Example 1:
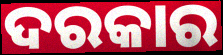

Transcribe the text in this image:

ଦରକାର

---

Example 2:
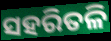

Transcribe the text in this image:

ସହରିତଳି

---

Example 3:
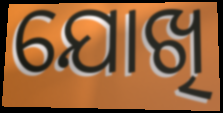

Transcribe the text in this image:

ଯୋଖି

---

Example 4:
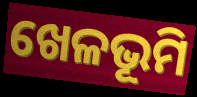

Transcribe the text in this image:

ଖେଳଭୂମି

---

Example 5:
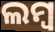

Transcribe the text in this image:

ଲମ୍ୱ